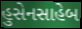
હુસેનસાહેબ